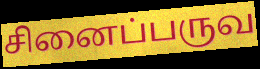
சினைப்பருவ